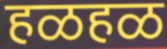
हळहळ